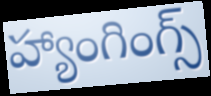
హ్యాంగింగ్స్